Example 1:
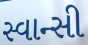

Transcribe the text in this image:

સ્વાન્સી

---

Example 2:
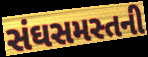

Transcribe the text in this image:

સંઘસમસ્તની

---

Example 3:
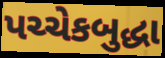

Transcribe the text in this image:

પચ્ચેકબુદ્ધા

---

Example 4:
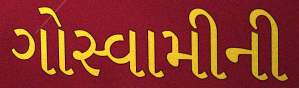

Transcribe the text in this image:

ગોસ્વામીની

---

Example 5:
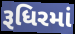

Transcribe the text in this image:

રૂધિરમાં